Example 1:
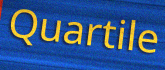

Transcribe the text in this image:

Quartile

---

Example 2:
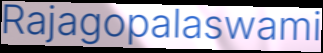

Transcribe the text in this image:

Rajagopalaswami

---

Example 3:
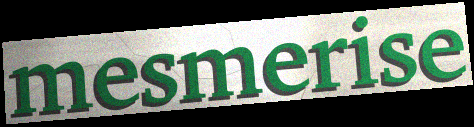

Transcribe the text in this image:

mesmerise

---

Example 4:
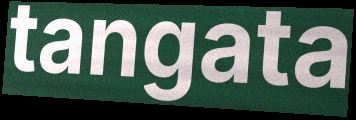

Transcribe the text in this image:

tangata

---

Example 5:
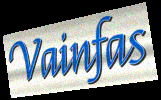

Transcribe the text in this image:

Vainfas